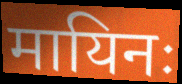
मायिनः